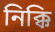
নিক্কি